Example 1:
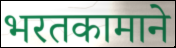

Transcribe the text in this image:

भरतकामाने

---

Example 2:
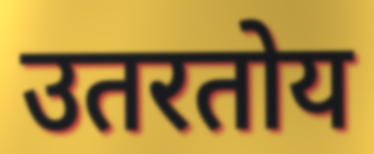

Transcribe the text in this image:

उतरतोय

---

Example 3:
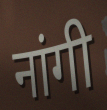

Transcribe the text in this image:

नांगी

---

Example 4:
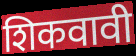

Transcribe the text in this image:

शिकवावी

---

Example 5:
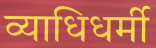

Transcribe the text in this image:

व्याधिधर्मी